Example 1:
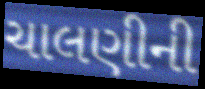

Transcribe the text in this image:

ચાલણીની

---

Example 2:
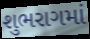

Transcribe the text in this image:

શુભરાગમાં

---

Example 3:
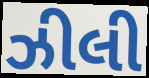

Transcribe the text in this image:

ઝીલી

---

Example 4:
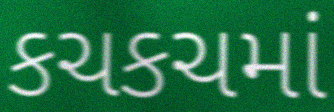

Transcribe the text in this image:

કચકચમાં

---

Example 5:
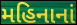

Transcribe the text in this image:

મહિનાનાં